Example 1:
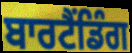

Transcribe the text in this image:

ਬਾਰਟੈਂਡਿੰਗ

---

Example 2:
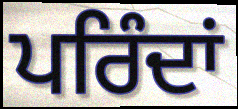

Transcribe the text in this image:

ਪਰਿੰਦਾਂ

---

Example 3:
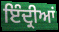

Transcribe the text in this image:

ਇੰਦ੍ਰੀਆਂ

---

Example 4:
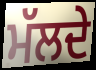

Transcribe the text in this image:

ਮੱਲਦੇ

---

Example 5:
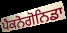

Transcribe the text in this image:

ਪੈਕਨੋਗੋਨਿਡਾ